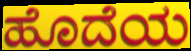
ಹೊದೆಯ